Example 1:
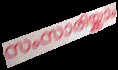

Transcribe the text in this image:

സംസാരിയ്ക്കാം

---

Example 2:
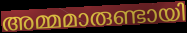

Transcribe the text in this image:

അമ്മമാരുണ്ടായി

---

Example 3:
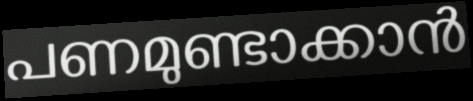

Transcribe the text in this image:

പണമുണ്ടാക്കാൻ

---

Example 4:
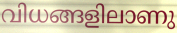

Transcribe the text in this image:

വിധങ്ങളിലാണു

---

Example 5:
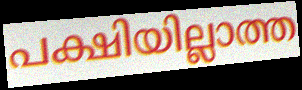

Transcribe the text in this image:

പക്ഷിയില്ലാത്ത